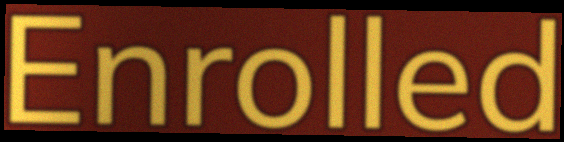
Enrolled